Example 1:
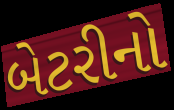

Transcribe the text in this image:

બેટરીનો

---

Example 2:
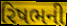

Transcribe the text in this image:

રિષભની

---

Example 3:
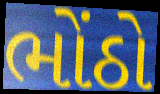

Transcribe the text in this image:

ભોંઠો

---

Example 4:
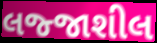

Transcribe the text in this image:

લજ્જાશીલ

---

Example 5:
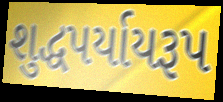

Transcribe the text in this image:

શુદ્ધપર્યાયરૂપ